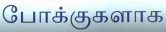
போக்குகளாக